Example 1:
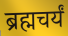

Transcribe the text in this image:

ब्रह्मचर्यं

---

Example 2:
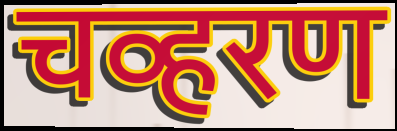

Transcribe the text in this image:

चव्हरण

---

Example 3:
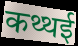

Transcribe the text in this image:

कथ्थई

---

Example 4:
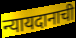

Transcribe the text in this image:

न्यायदानाची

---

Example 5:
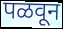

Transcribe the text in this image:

पळवून